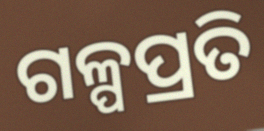
ଗଳ୍ପପ୍ରତି